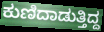
ಕುಣಿದಾಡುತ್ತಿದ್ದ